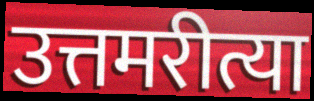
उत्तमरीत्या